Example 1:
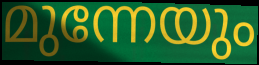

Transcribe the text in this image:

മുന്നേയും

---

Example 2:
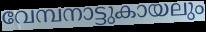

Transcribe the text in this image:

വേമ്പനാട്ടുകായലും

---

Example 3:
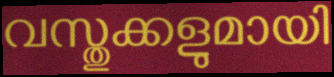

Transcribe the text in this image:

വസ്തുക്കളുമായി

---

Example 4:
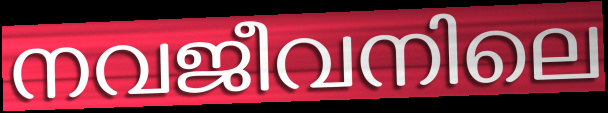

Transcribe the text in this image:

നവജീവനിലെ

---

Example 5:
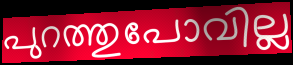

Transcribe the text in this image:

പുറത്തുപോവില്ല